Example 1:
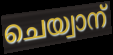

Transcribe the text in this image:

ചെയ്വാന്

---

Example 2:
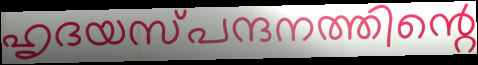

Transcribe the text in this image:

ഹൃദയസ്പന്ദനത്തിന്റെ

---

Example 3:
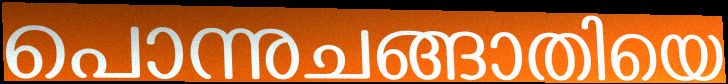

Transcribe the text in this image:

പൊന്നുചങ്ങാതിയെ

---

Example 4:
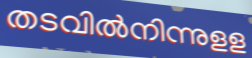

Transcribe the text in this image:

തടവിൽനിന്നുളള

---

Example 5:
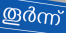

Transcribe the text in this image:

തൂർന്ന്